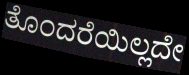
ತೊಂದರೆಯಿಲ್ಲದೇ